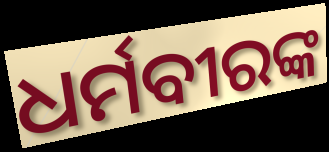
ଧର୍ମବୀରଙ୍କ